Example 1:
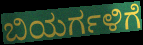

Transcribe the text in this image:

ಬಿಯರ್ಗಳಿಗೆ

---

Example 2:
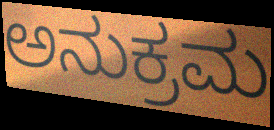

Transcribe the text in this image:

ಅನುಕ್ರಮ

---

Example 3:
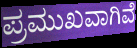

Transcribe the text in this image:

ಪ್ರಮುಖವಾಗಿವೆ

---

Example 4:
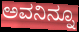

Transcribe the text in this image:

ಅವನಿನ್ನೂ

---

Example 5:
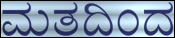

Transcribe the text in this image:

ಮತದಿಂದ